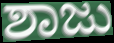
ಶಾಜು